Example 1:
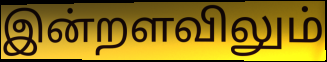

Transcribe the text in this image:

இன்றளவிலும்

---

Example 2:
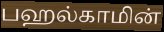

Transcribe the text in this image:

பஹல்காமின்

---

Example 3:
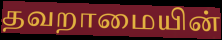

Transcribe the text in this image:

தவறாமையின்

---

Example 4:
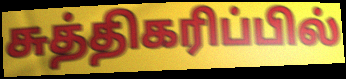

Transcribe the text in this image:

சுத்திகரிப்பில்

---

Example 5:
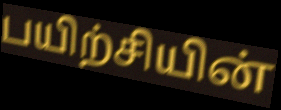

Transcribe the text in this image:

பயிற்சியின்